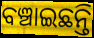
ବଞ୍ଚାଇଛନ୍ତି